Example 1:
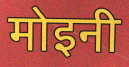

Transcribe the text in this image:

मोइनी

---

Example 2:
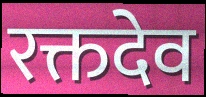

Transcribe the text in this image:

रक्तदेव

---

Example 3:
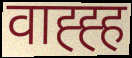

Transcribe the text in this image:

वाह्ह्ह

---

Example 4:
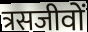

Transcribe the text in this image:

त्रसजीवों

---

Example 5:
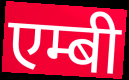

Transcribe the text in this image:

एम्बी